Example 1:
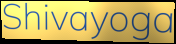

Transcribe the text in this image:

Shivayoga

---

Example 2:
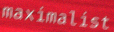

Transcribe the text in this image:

maximalist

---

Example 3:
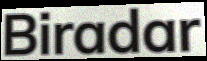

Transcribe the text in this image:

Biradar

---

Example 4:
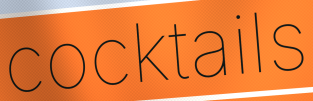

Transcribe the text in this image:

cocktails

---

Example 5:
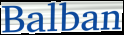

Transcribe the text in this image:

Balban